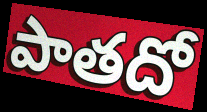
పాతదో